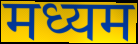
मध्यम